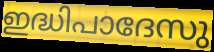
ഇദ്ധിപാദേസു